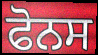
ਫੋਨਸ